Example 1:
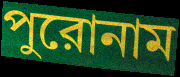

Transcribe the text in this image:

পুরোনাম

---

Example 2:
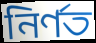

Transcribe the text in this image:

নির্ণত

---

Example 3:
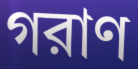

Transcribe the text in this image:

গরাণ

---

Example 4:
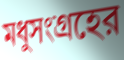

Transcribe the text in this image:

মধুসংগ্রহের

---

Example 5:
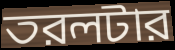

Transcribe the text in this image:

তরলটার